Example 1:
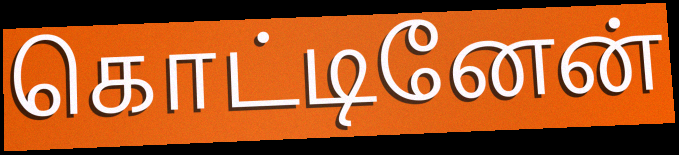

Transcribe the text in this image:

கொட்டினேன்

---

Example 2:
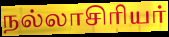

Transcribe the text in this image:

நல்லாசிரியர்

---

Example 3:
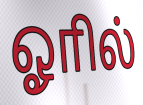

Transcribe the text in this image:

ஓரில்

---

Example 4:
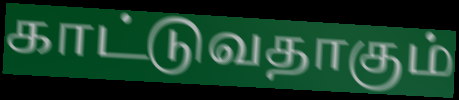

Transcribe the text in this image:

காட்டுவதாகும்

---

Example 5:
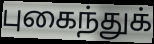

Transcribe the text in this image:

புகைந்துக்